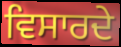
ਵਿਸਾਰਦੇ